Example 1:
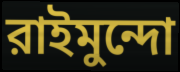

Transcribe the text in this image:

রাইমুন্দো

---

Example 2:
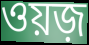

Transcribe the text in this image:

ওয়জ়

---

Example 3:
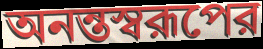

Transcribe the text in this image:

অনন্তস্বরূপের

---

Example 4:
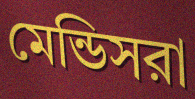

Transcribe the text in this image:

মেন্ডিসরা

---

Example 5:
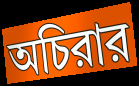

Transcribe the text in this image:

অচিরার